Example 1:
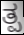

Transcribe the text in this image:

ತ್ಪ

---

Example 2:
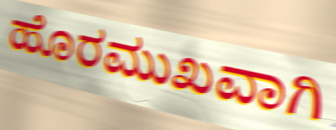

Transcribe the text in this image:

ಹೊರಮುಖವಾಗಿ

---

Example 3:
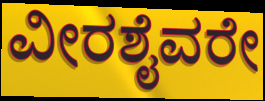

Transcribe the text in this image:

ವೀರಶೈವರೇ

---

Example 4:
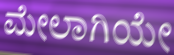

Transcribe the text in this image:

ಮೇಲಾಗಿಯೇ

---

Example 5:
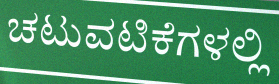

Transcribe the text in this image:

ಚಟುವಟಿಕೆಗಳಲ್ಲಿ